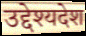
उद्देश्यदेश